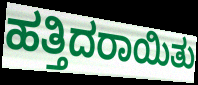
ಹತ್ತಿದರಾಯಿತು